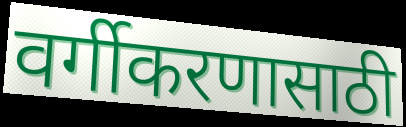
वर्गीकरणासाठी